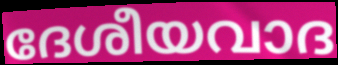
ദേശീയവാദ